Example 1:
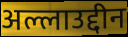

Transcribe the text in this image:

अल्लाउद्दीन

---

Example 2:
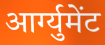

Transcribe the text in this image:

आर्ग्युमेंट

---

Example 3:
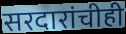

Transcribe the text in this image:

सरदारांचीही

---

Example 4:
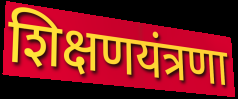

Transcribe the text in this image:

शिक्षणयंत्रणा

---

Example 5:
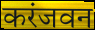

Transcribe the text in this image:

करंजवन